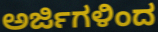
ಅರ್ಜಿಗಳಿಂದ